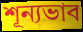
শূন্যভাব